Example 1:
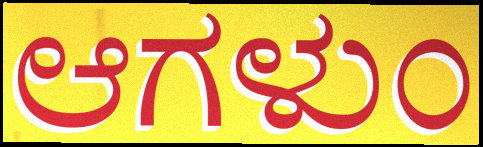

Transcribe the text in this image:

ಆಗಳುಂ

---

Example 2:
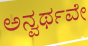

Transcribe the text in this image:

ಅನ್ವರ್ಥವೇ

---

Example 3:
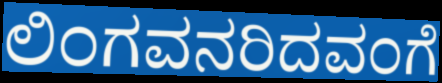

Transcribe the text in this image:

ಲಿಂಗವನರಿದವಂಗೆ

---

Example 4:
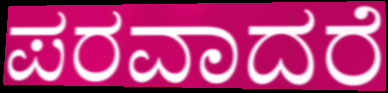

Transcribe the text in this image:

ಪರವಾದರೆ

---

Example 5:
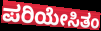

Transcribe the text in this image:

ಪರಿಯೇಸಿತಂ